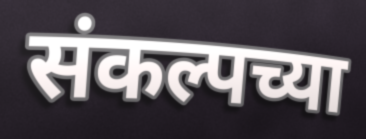
संकल्पच्या